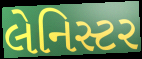
લેનિસ્ટર